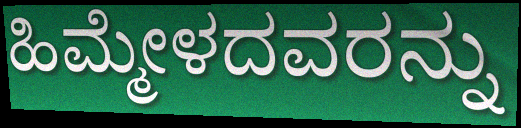
ಹಿಮ್ಮೇಳದವರನ್ನು